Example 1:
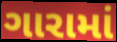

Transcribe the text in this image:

ગારામાં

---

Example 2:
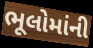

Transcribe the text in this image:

ભૂલોમાંની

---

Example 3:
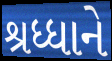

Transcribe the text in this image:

શ્રધ્ધાને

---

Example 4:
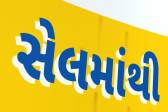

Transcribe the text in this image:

સેલમાંથી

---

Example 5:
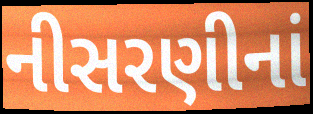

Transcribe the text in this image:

નીસરણીનાં